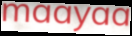
maayaa